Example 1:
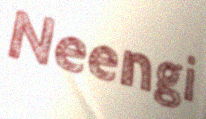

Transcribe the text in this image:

Neengi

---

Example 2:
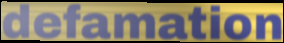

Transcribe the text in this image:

defamation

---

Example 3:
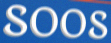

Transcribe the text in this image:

SOOS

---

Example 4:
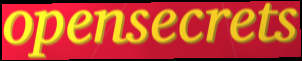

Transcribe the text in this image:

opensecrets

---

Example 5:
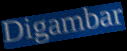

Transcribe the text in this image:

Digambar